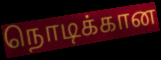
நொடிக்கான